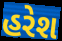
હરેશ